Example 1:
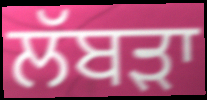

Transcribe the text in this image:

ਲੱਬੜਾ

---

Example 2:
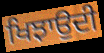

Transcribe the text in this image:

ਖਿਝਾਉਦੀ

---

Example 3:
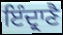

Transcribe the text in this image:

ਇੰਦ੍ਰਾਣੈ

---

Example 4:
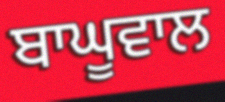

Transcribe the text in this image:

ਬਾਘੂਵਾਲ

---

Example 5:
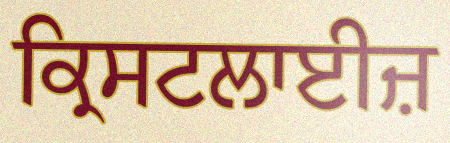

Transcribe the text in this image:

ਕ੍ਰਿਸਟਲਾਈਜ਼